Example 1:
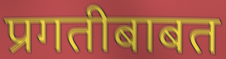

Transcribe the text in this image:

प्रगतीबाबत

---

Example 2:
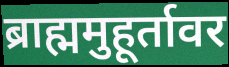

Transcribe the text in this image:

ब्राह्ममुहूर्तावर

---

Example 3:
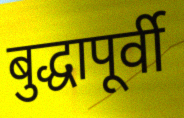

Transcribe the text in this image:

बुद्धापूर्वी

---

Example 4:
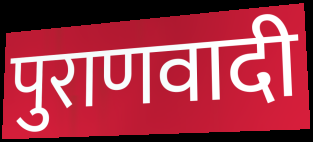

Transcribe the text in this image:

पुराणवादी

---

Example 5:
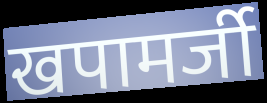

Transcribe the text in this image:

खपामर्जी